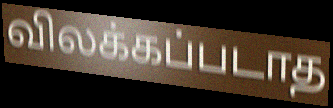
விலக்கப்படாத